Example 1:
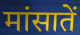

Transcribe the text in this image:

मांसातें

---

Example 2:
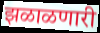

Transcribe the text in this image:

झळाळणारी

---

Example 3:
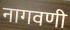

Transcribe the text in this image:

नागवणी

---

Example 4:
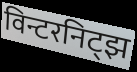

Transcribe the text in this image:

विन्टरनिट्झ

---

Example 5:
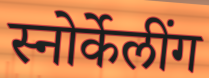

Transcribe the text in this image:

स्नोर्केलींग